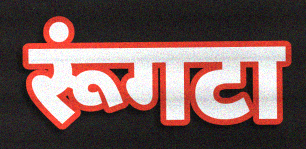
रूंगटा